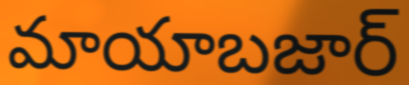
మాయాబజార్